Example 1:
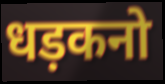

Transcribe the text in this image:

धड़कनो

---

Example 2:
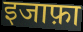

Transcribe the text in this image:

इजाफ़ा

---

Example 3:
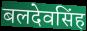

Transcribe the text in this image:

बलदेवसिंह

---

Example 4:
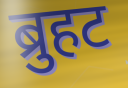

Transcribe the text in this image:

ब्रुहट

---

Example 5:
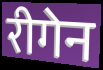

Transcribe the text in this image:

रीगेन